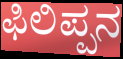
ಫಿಲಿಪ್ಪನ